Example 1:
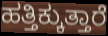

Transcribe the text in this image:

ಹತ್ತಿಕ್ಕುತ್ತಾರೆ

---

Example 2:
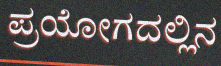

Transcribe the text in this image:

ಪ್ರಯೋಗದಲ್ಲಿನ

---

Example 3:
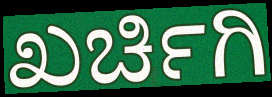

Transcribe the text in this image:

ಖರ್ಚಿಗಿ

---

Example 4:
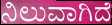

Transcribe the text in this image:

ನಿಲುವಾಗಿದೆ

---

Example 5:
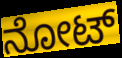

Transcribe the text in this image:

ನೋಟ್